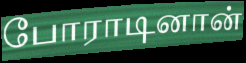
போராடினான்